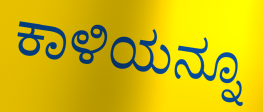
ಕಾಳಿಯನ್ನೂ